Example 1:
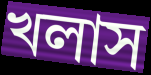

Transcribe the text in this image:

খলাস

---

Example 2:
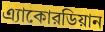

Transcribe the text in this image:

এ্যাকোরডিয়ান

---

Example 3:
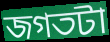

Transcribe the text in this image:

জগতটা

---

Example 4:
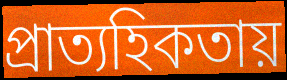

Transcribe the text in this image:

প্রাত্যহিকতায়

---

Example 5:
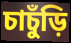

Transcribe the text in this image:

চাচুঁড়ি